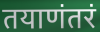
तयाणंतरं